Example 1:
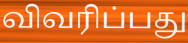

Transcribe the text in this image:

விவரிப்பது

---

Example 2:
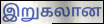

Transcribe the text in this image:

இறுகலான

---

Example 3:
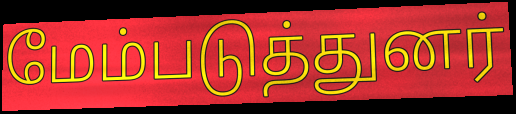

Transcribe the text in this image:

மேம்படுத்துனர்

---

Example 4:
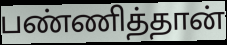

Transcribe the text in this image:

பண்ணித்தான்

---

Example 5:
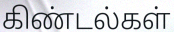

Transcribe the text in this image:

கிண்டல்கள்